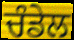
ਚੰਡੇਲ